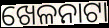
ଖେଳନାଟା